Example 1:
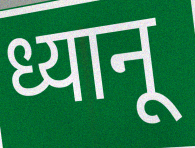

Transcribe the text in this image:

ध्यानू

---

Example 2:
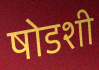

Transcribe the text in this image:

षोडशी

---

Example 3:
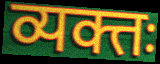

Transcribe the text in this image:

व्यक्तः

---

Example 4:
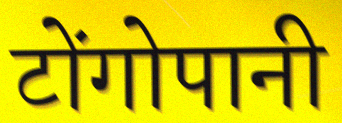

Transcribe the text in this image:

टोंगोपानी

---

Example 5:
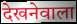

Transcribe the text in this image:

देखनेवाला